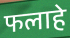
फलाहे